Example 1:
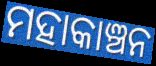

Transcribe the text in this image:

ମହାକାଞ୍ଚନ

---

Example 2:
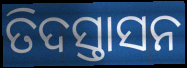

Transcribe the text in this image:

ତିଦସ୍ତାସନ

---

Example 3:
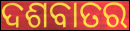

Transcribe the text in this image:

ଦଶବାତର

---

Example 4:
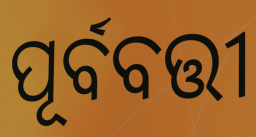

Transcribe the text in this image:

ପୂର୍ବବତ୍ତୀ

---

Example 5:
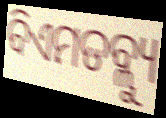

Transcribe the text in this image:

ବିଏମଡବ୍ଲ୍ୟୁ